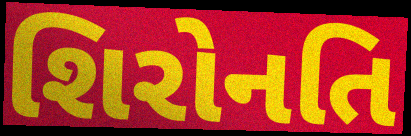
શિરોનતિ